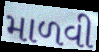
માળવી